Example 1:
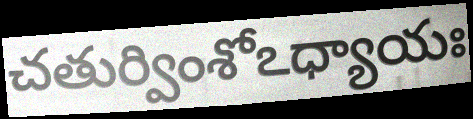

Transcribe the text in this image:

చతుర్వింశోఽధ్యాయః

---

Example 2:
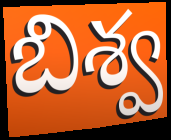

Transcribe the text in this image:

బిశ్వ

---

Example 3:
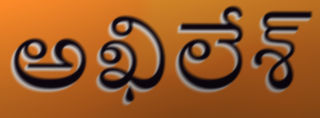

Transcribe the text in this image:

అఖిలేశ్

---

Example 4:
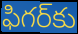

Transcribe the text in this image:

ఫిగర్‌కు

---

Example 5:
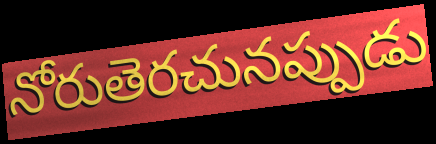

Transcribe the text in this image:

నోరుతెరచునప్పుడు